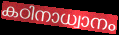
കഠിനാധ്വാനം